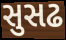
સુસઢ